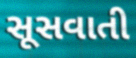
સૂસવાતી